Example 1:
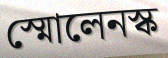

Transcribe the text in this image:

স্মোলেনস্ক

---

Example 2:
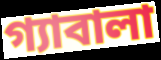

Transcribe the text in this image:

গ্যাবালা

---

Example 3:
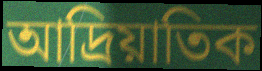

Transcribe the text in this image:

আদ্রিয়াতিক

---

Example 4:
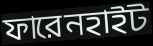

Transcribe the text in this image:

ফারেনহাইট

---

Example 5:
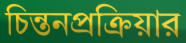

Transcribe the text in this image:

চিন্তনপ্রক্রিয়ার